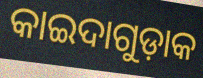
କାଇଦାଗୁଡ଼ାକ